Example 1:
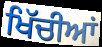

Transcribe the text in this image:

ਖਿੱਚੀਆਂ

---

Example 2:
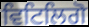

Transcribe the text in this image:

ਵਿਟਿਲਿਗੋ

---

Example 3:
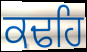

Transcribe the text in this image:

ਕਢਹਿ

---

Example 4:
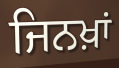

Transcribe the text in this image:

ਜਿਨਖ਼ਾਂ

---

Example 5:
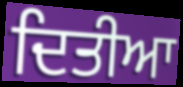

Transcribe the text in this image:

ਦਿਤੀਆ